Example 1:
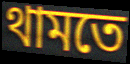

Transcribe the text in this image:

থামতে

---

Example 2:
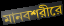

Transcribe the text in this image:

মানবশরীরে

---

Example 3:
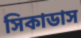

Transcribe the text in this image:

সিকাডাস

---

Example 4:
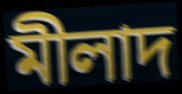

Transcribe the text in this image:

মীলাদ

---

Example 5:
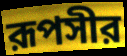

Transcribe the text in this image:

রূপসীর